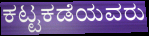
ಕಟ್ಟಕಡೆಯವರು